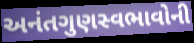
અનંતગુણસ્વભાવોની